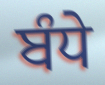
ਬੰਧੇ